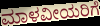
ಮಾಳವೀಯರಿಗೆ